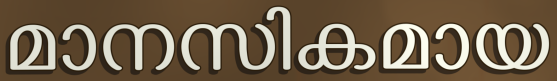
മാനസികമായ